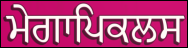
ਮੇਗਾਪਿਕਲਸ